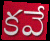
కవే